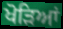
ਖੋੜਿਆਂ